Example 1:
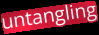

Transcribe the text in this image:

untangling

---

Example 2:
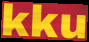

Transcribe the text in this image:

kku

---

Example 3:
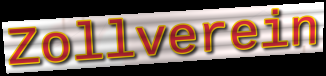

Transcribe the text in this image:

Zollverein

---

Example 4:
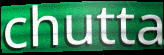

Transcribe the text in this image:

chutta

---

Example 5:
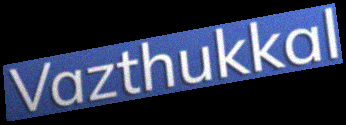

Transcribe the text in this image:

Vazthukkal